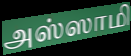
அஸ்ஸாமி